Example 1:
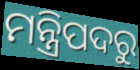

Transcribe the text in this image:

ମନ୍ତ୍ରିପଦରୁ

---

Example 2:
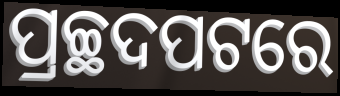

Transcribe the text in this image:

ପ୍ରଚ୍ଛଦପଟରେ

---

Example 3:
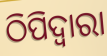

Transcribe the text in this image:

ଠିପିଦ୍ଵାରା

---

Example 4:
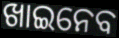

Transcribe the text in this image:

ଖାଇନେବ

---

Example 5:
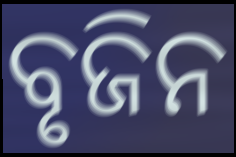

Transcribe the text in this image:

ବୃଜିନ